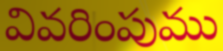
వివరింపుము